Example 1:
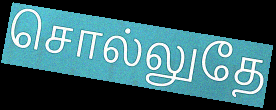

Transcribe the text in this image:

சொல்லுதே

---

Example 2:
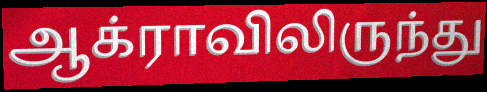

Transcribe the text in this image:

ஆக்ராவிலிருந்து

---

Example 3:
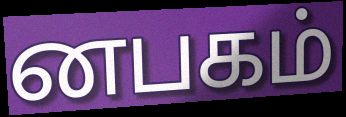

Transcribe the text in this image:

னபகம்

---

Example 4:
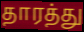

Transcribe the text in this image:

தாரத்து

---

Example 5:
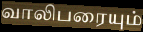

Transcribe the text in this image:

வாலிபரையும்